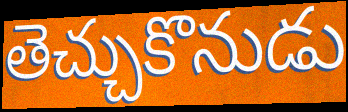
తెచ్చుకొనుడు